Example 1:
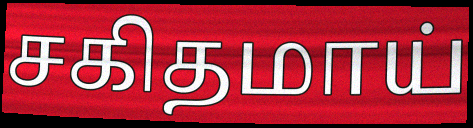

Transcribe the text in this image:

சகிதமாய்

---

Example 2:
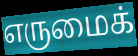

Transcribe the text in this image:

எருமைக்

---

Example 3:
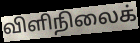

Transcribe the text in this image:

விளிநிலைக்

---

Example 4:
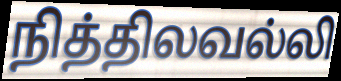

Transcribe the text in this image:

நித்திலவல்லி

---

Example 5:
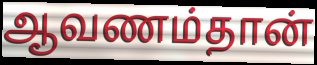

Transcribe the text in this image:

ஆவணம்தான்